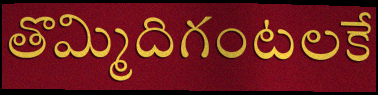
తొమ్మిదిగంటలకే